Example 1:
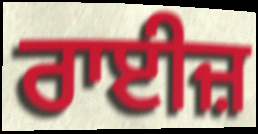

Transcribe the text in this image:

ਰਾਈਜ਼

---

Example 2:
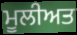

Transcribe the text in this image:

ਮੂਲੀਅਤ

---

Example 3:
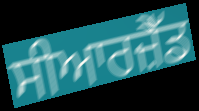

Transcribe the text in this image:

ਸੀਆਰਜ਼ੈੱਡ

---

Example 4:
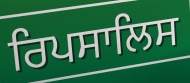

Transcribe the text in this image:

ਰਿਪਸਾਲਿਸ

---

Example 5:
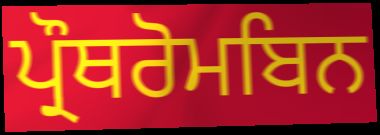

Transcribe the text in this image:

ਪ੍ਰੌਥਰੋਮਬਿਨ